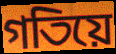
গতিয়ে